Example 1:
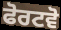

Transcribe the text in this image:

ਫੋਰਟਵੋ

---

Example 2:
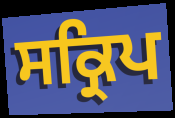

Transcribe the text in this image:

ਸਕ੍ਰਿਪ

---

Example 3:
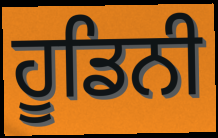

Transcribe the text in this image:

ਹੂਡਿਨੀ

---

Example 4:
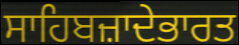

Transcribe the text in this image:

ਸਾਹਿਬਜ਼ਾਦੇਭਾਰਤ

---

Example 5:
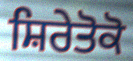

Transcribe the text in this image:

ਸ਼ਿਰੇਤੋਕੋ